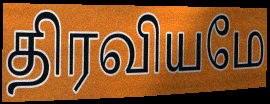
திரவியமே